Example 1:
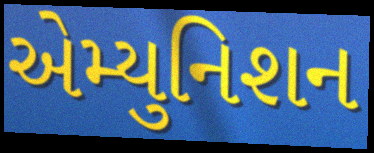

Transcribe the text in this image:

એમ્યુનિશન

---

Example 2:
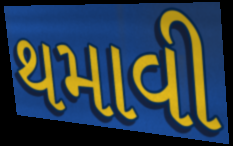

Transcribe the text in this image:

થમાવી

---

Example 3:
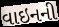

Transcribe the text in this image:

વાઇનની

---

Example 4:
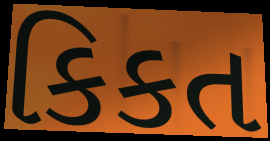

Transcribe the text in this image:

કિકત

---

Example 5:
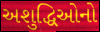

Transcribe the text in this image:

અશુદ્ધિઓનો